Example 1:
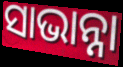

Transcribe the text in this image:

ସାଭାନ୍ନା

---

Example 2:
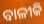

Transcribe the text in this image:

ବାଳୀକି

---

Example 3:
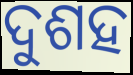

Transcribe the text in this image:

ଦୁଶହ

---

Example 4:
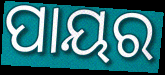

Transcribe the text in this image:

ପାୟର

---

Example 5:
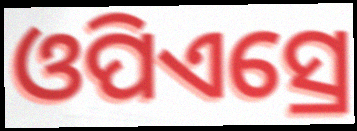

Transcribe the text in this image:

ଓପିଏସ୍ରେ